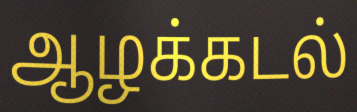
ஆழக்கடல்